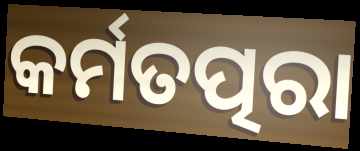
କର୍ମତତ୍ପରା